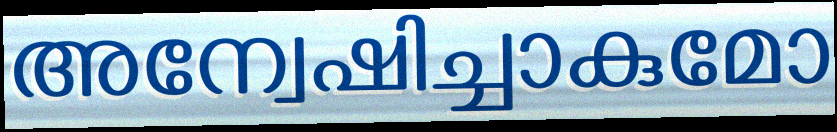
അന്വേഷിച്ചാകുമോ